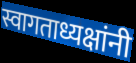
स्वागताध्यक्षांनी